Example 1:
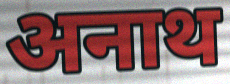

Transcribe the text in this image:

अनाथ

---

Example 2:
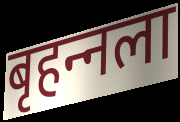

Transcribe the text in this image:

बृहन्नला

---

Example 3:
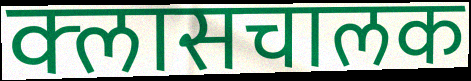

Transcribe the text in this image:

क्‍लासचालक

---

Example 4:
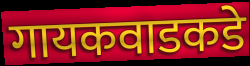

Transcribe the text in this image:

गायकवाडकडे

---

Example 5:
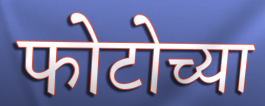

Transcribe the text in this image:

फोटोच्या